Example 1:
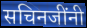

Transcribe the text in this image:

सचिनजींनी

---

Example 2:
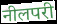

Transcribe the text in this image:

नीलपरी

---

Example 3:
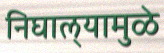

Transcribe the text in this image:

निघाल्यामुळे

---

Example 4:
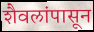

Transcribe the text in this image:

शैवलांपासून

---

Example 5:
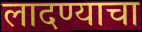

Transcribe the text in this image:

लादण्याचा